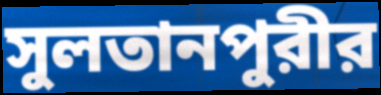
সুলতানপুরীর